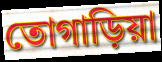
তোগাড়িয়া